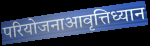
परियोजनाआवृत्तिध्यान